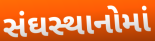
સંઘસ્થાનોમાં